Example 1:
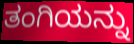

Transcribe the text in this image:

ತಂಗಿಯನ್ನು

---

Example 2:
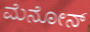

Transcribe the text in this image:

ಮೆನೋನ್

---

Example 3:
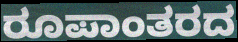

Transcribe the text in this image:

ರೂಪಾಂತರದ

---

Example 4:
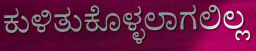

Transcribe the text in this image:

ಕುಳಿತುಕೊಳ್ಳಲಾಗಲಿಲ್ಲ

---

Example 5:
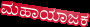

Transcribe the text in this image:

ಮಹಾಯಾಜಕ